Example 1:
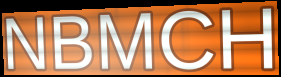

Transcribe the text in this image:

NBMCH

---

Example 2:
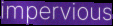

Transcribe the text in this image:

impervious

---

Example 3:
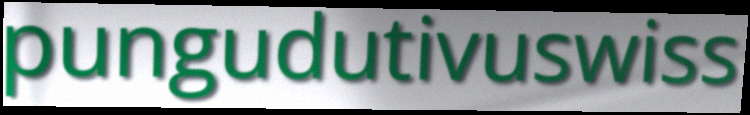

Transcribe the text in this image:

pungudutivuswiss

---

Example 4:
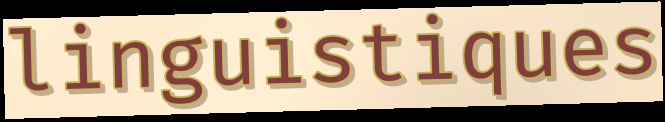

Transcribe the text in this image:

linguistiques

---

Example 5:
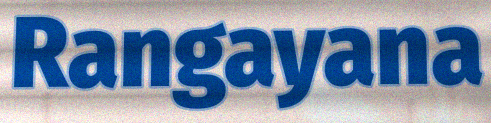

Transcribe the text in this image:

Rangayana